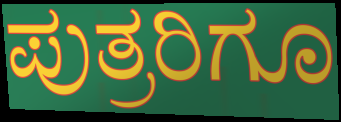
ಪುತ್ರರಿಗೂ